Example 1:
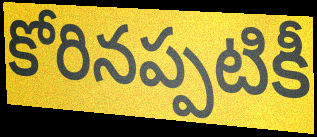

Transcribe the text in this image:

కోరినప్పటికీ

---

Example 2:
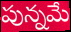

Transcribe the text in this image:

పున్నమే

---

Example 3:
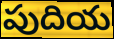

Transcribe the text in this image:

పుదియ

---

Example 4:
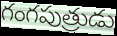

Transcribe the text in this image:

గంగపుత్రుడు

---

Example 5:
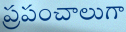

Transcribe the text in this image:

ప్రపంచాలుగా